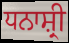
ਧਨਾਸ਼੍ਰੀ